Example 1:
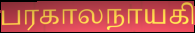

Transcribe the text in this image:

பரகாலநாயகி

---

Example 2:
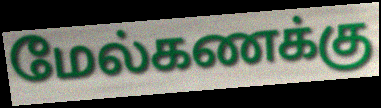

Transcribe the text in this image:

மேல்கணக்கு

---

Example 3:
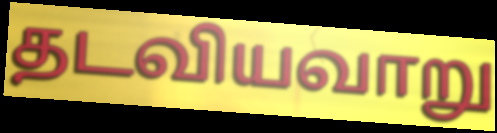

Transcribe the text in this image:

தடவியவாறு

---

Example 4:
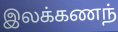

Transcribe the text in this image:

இலக்கணந்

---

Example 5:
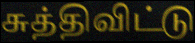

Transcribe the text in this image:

சுத்திவிட்டு